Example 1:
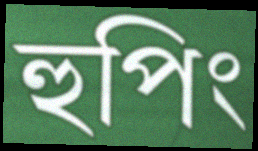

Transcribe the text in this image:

হুপিং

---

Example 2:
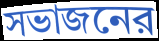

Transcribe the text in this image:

সভাজনের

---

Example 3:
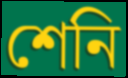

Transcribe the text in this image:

শেনি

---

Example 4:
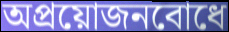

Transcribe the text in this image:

অপ্রয়োজনবোধে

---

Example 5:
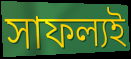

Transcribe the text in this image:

সাফল্যই